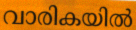
വാരികയിൽ